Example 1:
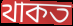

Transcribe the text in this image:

থাকত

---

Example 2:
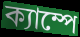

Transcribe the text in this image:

ক্যাম্পে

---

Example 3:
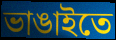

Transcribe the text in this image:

ভাঙাইতে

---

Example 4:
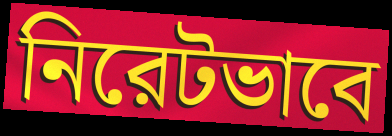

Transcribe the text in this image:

নিরেটভাবে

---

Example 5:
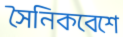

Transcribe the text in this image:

সৈনিকবেশে